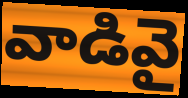
వాడివై